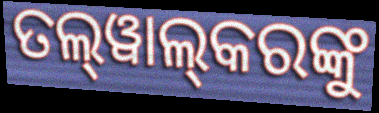
ତଲ୍‌ୱାଲ୍‌କରଙ୍କୁ